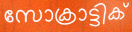
സോക്രാട്ടിക്